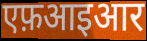
एफ़आइआर